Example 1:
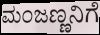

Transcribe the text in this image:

ಮಂಜಣ್ಣನಿಗೆ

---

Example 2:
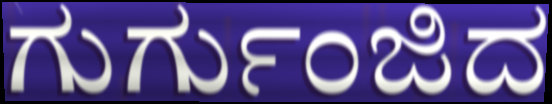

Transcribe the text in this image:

ಗುರ್ಗುಂಜಿದ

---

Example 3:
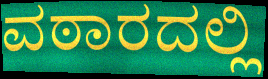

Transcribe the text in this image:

ವಠಾರದಲ್ಲಿ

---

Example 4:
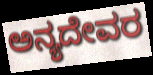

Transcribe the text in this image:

ಅನ್ಯದೇವರ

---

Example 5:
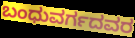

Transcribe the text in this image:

ಬಂಧುವರ್ಗದವರ